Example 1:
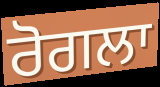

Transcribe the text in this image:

ਰੋਗਲਾ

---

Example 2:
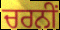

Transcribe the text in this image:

ਚਰਨੀਂ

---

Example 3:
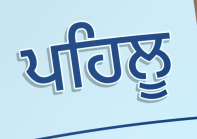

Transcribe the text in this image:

ਪਹਿਲੂ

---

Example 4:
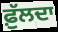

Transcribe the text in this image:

ਫ਼ੁੱਲਦਾ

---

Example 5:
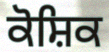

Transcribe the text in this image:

ਕੋਸ਼ਿਕ